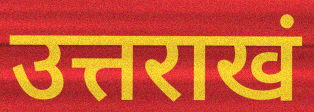
उत्तराखं